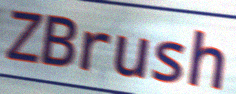
ZBrush